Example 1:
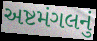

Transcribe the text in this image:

અષ્ટમંગલનું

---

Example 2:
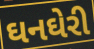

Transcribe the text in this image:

ઘનઘેરી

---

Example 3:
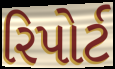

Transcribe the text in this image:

રિપોર્ટ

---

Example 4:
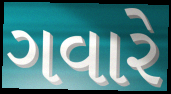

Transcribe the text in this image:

ગવારે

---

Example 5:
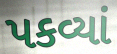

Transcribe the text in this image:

પકવ્યાં